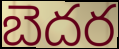
బెదర